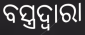
ବସ୍ତ୍ରଦ୍ୱାରା